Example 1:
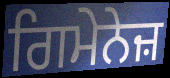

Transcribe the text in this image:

ਗਿਮੇਨੇਜ਼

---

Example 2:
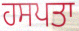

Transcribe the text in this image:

ਹਸਪਤਾ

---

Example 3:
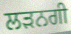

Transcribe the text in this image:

ਲੜਨਗੀ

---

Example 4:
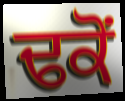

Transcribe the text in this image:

ਢਕੋਂ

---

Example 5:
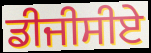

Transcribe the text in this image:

ਡੀਜੀਸੀਏ